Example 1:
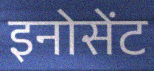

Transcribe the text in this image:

इनोसेंट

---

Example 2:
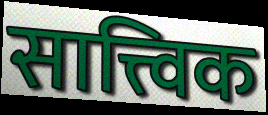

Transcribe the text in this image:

सात्त्विक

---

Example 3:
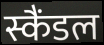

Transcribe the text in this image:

स्कैंडल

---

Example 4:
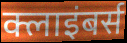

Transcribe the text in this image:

क्लाइंबर्स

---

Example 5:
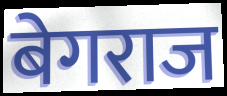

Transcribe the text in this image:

बेगराज